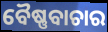
ବୈଷ୍ଣବାଚାର